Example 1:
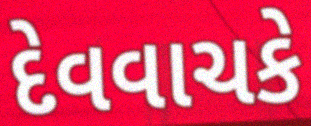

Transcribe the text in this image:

દેવવાચકે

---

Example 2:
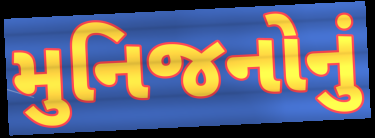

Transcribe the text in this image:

મુનિજનોનું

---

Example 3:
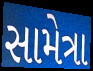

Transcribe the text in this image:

સામેત્રા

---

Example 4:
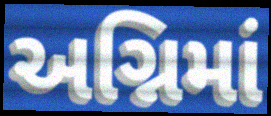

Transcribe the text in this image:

અગ્નિમાં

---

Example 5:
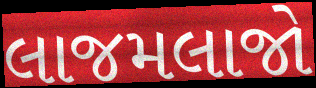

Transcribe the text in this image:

લાજમલાજો